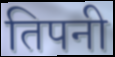
तिपनी